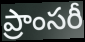
ప్రాంసరీ